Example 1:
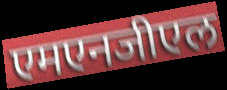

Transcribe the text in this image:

एमएनजीएल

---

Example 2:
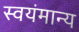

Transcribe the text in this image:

स्वयंमान्य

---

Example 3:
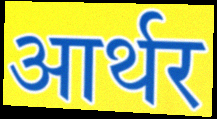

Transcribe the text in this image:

आर्थर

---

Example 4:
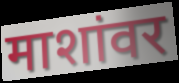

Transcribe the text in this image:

माशांवर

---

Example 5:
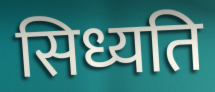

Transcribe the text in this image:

सिध्यति